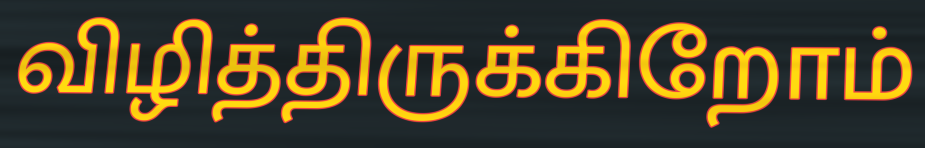
விழித்திருக்கிறோம்